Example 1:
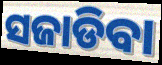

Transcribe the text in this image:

ସଜାଡିବା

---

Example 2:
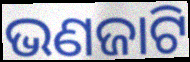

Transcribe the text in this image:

ଭଣଜାଟି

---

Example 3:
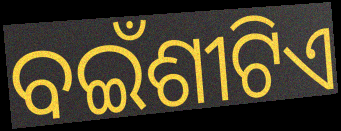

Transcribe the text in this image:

ବଇଁଶୀଟିଏ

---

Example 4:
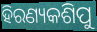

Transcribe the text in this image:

ହିରଣ୍ୟକଶିପୁ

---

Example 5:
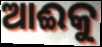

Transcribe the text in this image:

ଆଈକୁ